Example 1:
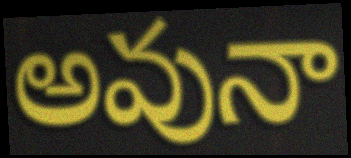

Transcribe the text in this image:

అవునా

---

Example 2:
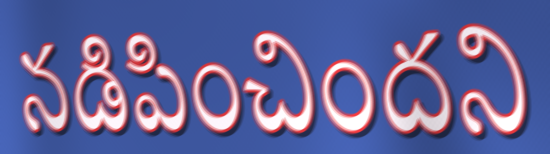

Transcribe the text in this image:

నడిపించిందని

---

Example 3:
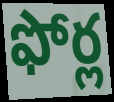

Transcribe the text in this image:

ఫోర్ల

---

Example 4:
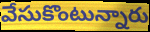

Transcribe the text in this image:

వేసుకొంటున్నారు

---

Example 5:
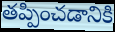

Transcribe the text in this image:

తప్పించడానికి